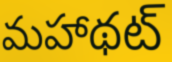
మహాథట్